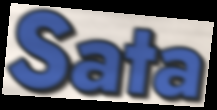
Sata